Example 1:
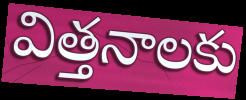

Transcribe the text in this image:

విత్తనాలకు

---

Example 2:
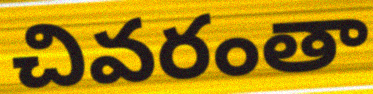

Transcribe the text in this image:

చివరంతా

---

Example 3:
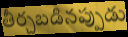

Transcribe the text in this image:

తీర్చబడినప్పుడు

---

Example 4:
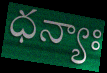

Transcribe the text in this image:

ధన్యాః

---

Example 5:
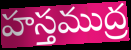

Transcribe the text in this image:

హస్తముద్ర